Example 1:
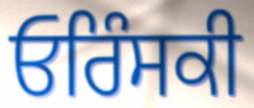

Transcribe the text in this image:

ਓਰਿੰਸਕੀ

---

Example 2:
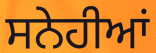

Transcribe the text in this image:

ਸਨੇਹੀਆਂ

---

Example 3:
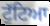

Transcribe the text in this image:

ਟੁੱਟਿਆ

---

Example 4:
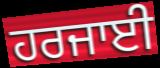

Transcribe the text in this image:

ਹਰਜਾਈ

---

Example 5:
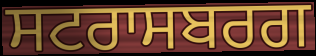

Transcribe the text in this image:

ਸਟਰਾਸਬਰਗ